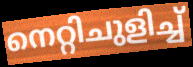
നെറ്റിചുളിച്ച്